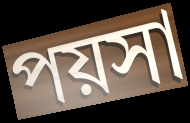
পয়সা